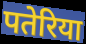
पतेरिया